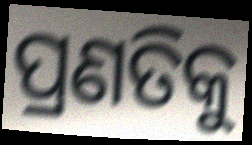
ପ୍ରଣତିକୁ